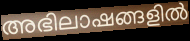
അഭിലാഷങ്ങളിൽ